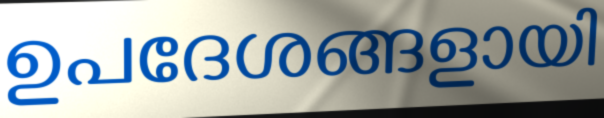
ഉപദേശങ്ങളായി